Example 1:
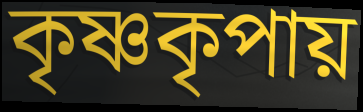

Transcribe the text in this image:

কৃষ্ণকৃপায়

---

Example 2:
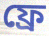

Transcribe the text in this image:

ফ্রে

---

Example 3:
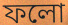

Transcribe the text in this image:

ফলো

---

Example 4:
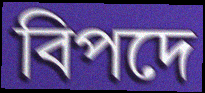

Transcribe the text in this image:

বিপদে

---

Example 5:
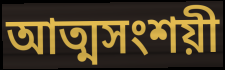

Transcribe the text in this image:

আত্মসংশয়ী